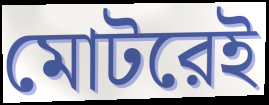
মোটরেই